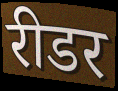
रीडर